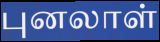
புனலாள்